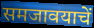
समजावयाचें